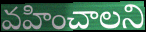
వహించాలని